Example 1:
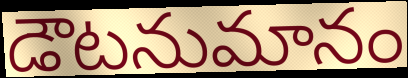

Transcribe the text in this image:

డౌటనుమానం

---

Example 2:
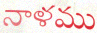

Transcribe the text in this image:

నాళము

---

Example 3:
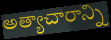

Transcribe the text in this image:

అత్యాచారాన్ని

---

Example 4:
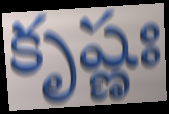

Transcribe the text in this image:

కృష్ణః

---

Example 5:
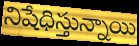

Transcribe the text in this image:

నిషేధిస్తున్నాయి